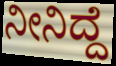
ನೀನಿದ್ದೆ